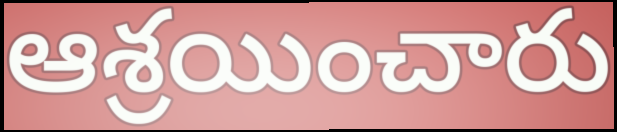
ఆశ్రయించారు